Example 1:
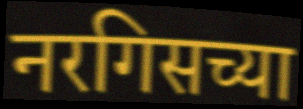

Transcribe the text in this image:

नरगिसच्या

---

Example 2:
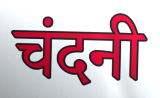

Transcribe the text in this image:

चंदनी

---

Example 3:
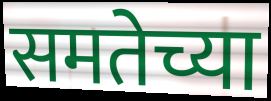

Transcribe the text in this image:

समतेच्या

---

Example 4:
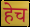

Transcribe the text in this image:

हेच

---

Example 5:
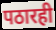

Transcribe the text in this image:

पठारही